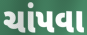
ચાંપવા